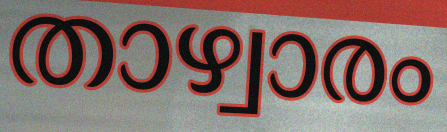
താഴ്വാരം